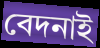
বেদনাই